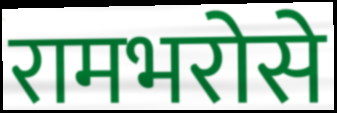
रामभरोसे